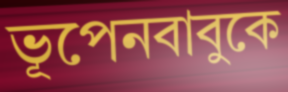
ভূপেনবাবুকে